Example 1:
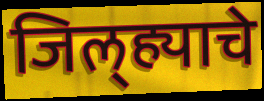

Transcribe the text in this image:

जिल्ह्याचे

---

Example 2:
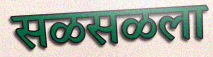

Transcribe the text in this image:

सळसळला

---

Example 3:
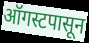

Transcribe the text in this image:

ऑगस्टपासून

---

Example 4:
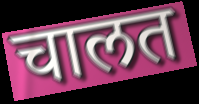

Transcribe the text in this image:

चालत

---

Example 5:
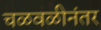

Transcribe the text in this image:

चळवळीनंतर